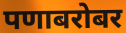
पणाबरोबर